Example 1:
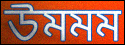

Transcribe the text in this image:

উমমম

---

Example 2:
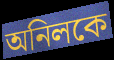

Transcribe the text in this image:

অনিলকে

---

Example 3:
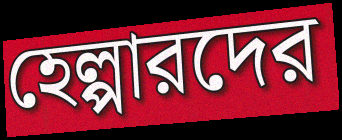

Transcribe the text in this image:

হেল্পারদের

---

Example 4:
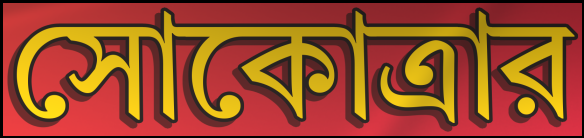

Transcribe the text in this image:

সোকোত্রার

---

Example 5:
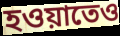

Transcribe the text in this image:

হওয়াতেও